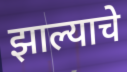
झाल्याचे